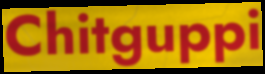
Chitguppi